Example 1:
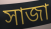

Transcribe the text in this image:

সাজা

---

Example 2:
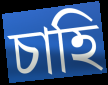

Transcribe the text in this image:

চাহি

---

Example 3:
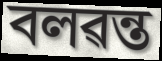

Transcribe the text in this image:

বলৱন্ত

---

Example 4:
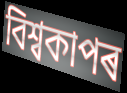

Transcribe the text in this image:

বিশ্বকাপৰ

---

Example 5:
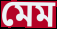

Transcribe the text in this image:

মেম